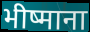
भीष्माना